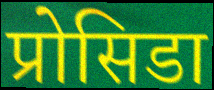
प्रोसिडा